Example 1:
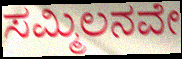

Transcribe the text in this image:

ಸಮ್ಮಿಲನವೇ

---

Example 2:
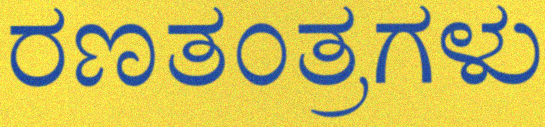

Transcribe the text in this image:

ರಣತಂತ್ರಗಳು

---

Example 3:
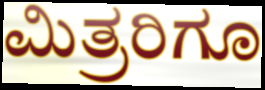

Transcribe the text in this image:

ಮಿತ್ರರಿಗೂ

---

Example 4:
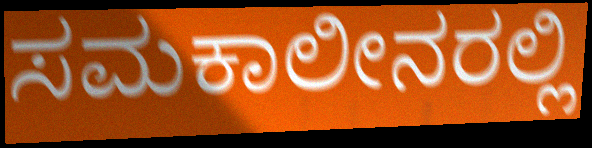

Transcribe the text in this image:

ಸಮಕಾಲೀನರಲ್ಲಿ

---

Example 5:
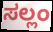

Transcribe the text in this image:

ಸಲ್ಲಂ